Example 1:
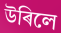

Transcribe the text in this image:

উৰিলে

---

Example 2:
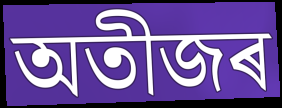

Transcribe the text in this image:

অতীজৰ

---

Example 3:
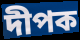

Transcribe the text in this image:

দীপক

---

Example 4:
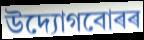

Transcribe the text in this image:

উদ্যোগবোৰৰ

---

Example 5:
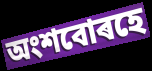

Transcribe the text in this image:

অংশবোৰহে